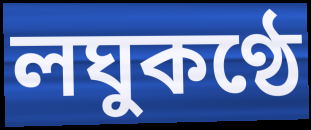
লঘুকণ্ঠে